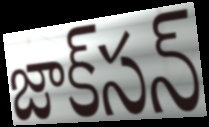
జాక్‌సన్